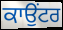
ਕਾਉਂਟਰ